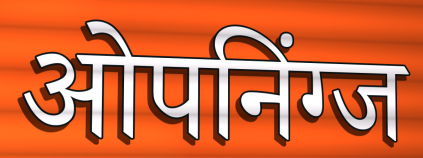
ओपनिंग्ज